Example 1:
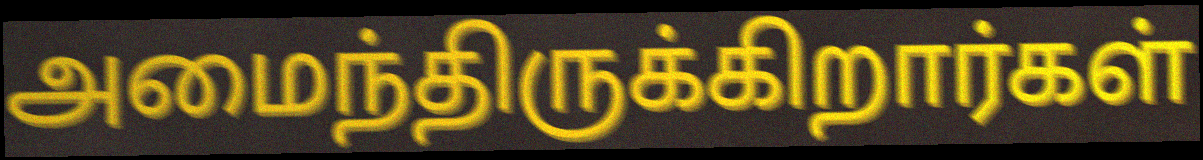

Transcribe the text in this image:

அமைந்திருக்கிறார்கள்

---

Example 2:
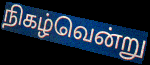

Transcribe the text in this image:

நிகழ்வென்று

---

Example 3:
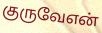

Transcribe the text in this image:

குருவேஎன்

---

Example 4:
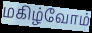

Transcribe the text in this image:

மகிழ்வோம்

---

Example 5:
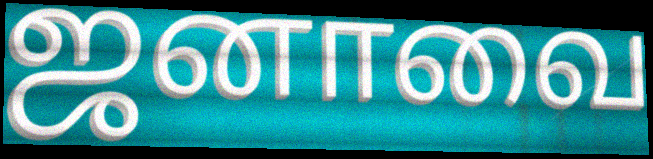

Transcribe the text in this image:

ஜனாவை